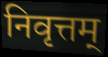
निवृत्तम्